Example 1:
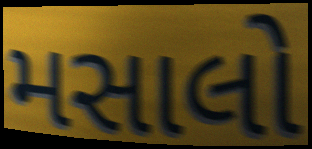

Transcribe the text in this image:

મસાલો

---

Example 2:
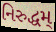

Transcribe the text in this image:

નિરુદ્ધમ્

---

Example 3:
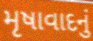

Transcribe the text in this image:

મૃષાવાદનું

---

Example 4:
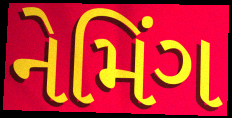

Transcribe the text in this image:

નેમિંગ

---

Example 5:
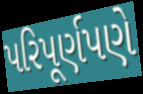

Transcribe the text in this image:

પરિપૂર્ણપણે